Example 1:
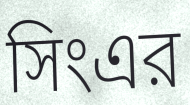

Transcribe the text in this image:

সিংএর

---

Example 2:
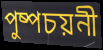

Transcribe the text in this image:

পুষ্পচয়নী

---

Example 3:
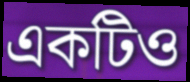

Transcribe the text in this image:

একটিও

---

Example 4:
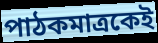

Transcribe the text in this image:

পাঠকমাত্রকেই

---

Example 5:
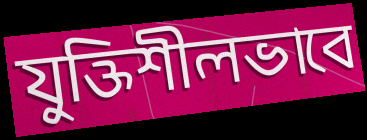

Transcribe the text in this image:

যুক্তিশীলভাবে